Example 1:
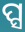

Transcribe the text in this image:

ପ୍ସ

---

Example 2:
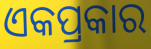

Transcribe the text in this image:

ଏକପ୍ରକାର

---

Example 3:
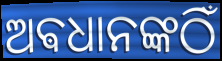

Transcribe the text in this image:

ଅଵଧାନଙ୍କଠିଁ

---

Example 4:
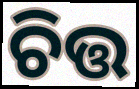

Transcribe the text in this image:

ଚିତ୍ତ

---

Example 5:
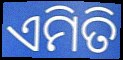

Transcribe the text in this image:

ଏମିତି